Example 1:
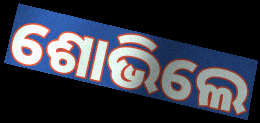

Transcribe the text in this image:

ଶୋଭିଲେ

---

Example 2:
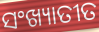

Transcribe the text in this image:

ସଂଖ୍ୟାତୀତ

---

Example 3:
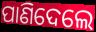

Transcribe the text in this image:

ପାଣିଦେଲେ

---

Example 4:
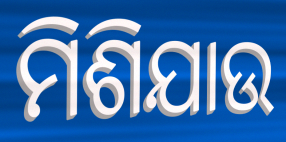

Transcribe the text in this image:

ମିଶିଯାଉ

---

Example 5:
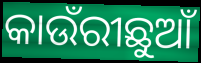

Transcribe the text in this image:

କାଉଁରୀଛୁଆଁ